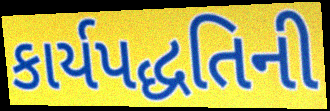
કાર્યપદ્ધતિની